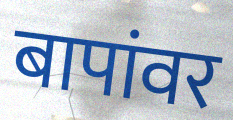
बापांवर